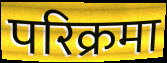
परिक्रमा